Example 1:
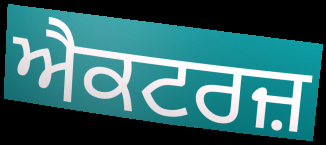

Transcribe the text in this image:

ਐਕਟਰਜ਼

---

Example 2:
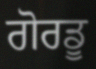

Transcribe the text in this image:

ਗੋਰਡੂ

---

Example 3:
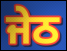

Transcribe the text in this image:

ਜੇਠ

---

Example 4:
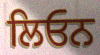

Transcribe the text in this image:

ਲਿਓਨ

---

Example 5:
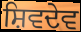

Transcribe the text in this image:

ਸ਼ਿਵਦੇਵ